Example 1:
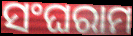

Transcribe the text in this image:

ସଂଘରାମ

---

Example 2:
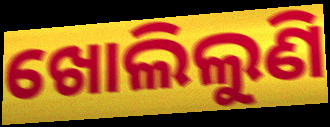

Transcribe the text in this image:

ଖୋଲିଲୁଣି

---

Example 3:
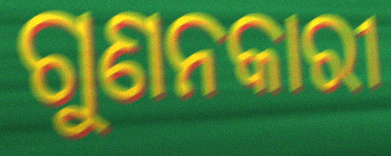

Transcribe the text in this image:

ଗୁଣନକାରୀ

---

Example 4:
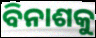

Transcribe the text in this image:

ବିନାଶକୁ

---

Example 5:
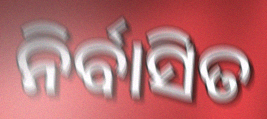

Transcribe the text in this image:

ନିର୍ବାସିତ